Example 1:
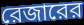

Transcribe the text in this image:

রেজারের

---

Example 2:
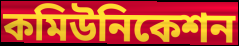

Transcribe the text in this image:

কমিউনিকেশন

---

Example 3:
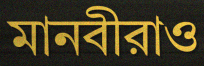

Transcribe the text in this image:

মানবীরাও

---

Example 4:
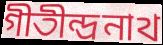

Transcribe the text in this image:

গীতীন্দ্রনাথ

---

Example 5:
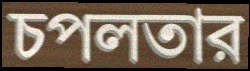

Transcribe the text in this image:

চপলতার